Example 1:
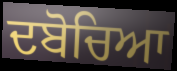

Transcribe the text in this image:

ਦਬੋਚਿਆ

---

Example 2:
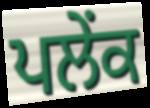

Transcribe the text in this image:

ਪਲੇਂਕ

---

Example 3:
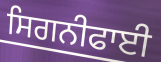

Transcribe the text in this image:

ਸਿਗਨੀਫਾਈ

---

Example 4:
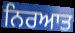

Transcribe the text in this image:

ਨਿਰਆਤ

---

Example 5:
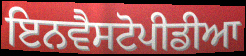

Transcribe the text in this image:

ਇਨਵੈਸਟੋਪੀਡੀਆ